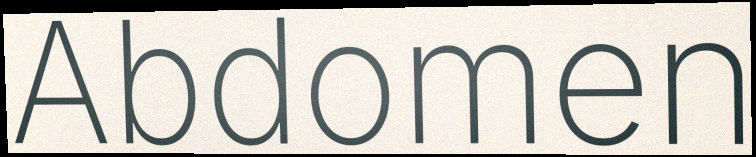
Abdomen